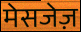
मेसजेज़